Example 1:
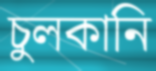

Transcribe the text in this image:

চুলকানি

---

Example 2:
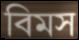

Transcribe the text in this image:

বিমস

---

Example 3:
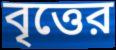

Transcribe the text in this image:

বৃত্তের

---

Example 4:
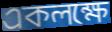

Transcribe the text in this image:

একলক্ষে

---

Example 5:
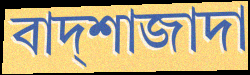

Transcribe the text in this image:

বাদ্শাজাদা